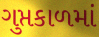
ગુપ્તકાળમાં